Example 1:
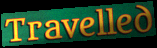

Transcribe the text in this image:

Travelled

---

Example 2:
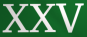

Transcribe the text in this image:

XXV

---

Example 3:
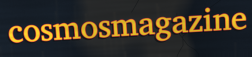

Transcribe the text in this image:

cosmosmagazine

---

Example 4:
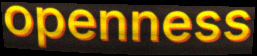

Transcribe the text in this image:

openness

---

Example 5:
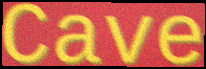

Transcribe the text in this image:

Cave